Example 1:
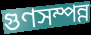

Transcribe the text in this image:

গুণসম্পন্ন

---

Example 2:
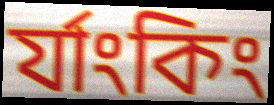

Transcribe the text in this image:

র্যাংকিং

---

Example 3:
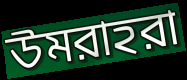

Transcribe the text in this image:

উমরাহরা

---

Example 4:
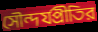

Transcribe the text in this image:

সৌন্দর্যপ্রীতির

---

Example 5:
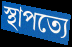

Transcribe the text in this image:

স্থাপত্যে